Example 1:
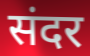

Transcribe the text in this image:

संदर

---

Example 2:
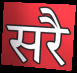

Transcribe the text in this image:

सरै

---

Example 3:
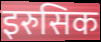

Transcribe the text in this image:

इरुसिक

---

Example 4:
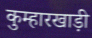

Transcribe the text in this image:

कुम्हारखाड़ी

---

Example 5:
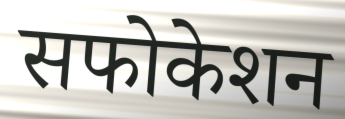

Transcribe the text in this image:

सफोकेशन